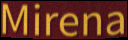
Mirena